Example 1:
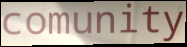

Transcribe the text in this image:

comunity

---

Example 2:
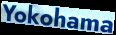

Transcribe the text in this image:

Yokohama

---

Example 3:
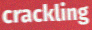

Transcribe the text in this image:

crackling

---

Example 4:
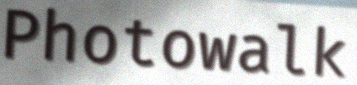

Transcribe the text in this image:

Photowalk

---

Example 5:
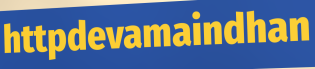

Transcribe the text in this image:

httpdevamaindhan